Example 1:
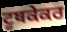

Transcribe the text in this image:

ਟੂਥਕੇਕਰ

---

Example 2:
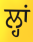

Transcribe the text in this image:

ਲ੍ਹਾਂ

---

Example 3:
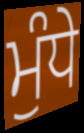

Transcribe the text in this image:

ਮੁੰਧੇ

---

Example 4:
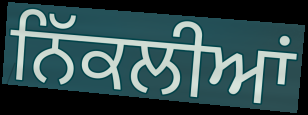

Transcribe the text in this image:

ਨਿੱਕਲੀਆਂ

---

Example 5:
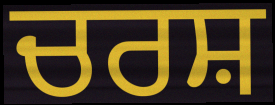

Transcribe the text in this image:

ਚਰਸ਼